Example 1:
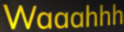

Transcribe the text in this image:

Waaahhh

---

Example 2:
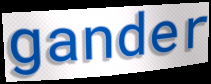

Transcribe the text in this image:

gander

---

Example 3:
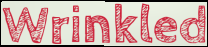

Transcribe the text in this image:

Wrinkled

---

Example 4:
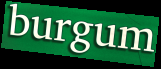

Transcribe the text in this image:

burgum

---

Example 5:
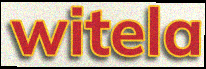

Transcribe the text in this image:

witela